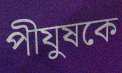
পীযুষকে